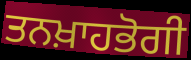
ਤਨਖ਼ਾਹਭੋਗੀ